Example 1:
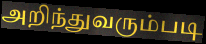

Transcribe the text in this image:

அறிந்துவரும்படி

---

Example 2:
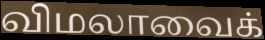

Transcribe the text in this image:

விமலாவைக்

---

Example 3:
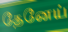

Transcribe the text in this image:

தேனேய்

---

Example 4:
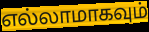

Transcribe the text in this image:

எல்லாமாகவும்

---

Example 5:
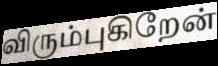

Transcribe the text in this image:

விரும்புகிறேன்